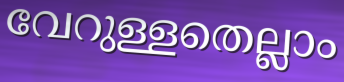
വേറുള്ളതെല്ലാം